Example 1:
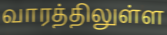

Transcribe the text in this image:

வாரத்திலுள்ள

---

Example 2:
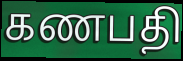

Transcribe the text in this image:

கணபதி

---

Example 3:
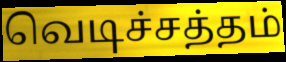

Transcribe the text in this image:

வெடிச்சத்தம்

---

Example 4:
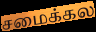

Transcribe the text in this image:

சமைக்கல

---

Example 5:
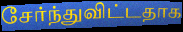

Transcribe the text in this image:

சேர்ந்துவிட்டதாக